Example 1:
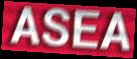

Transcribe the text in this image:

ASEA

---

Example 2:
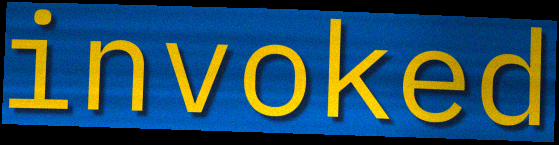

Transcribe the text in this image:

invoked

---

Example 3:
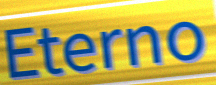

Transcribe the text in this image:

Eterno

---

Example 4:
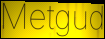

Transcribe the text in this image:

Metgud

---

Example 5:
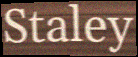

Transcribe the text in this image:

Staley